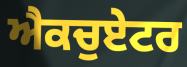
ਐਕਚੁਏਟਰ